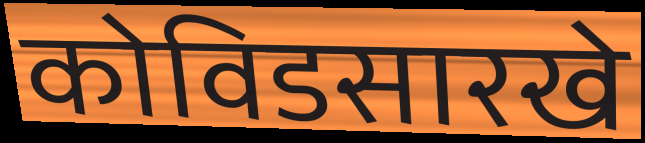
कोविडसारखे